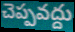
చెప్పవద్దు